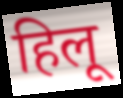
हिलू